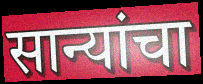
सान्यांचा